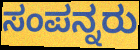
ಸಂಪನ್ನರು